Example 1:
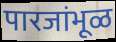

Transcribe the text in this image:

पारजांभूळ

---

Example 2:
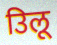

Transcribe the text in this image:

उिलू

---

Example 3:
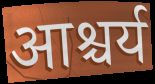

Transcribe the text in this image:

आश्चर्य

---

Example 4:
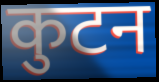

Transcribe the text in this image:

कुटन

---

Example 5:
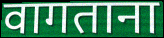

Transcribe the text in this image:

वागताना